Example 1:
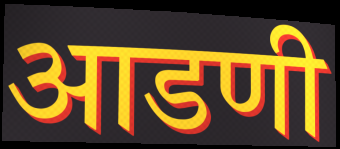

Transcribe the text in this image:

आडणी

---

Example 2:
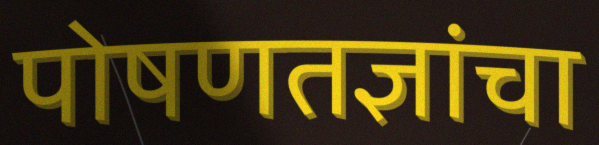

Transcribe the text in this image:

पोषणतज्ञांचा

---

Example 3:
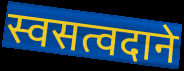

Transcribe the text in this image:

स्वसत्वदाने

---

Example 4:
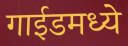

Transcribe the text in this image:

गाईडमध्ये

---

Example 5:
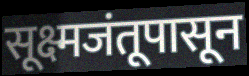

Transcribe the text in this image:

सूक्ष्मजंतूपासून